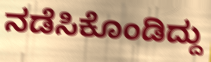
ನಡೆಸಿಕೊಂಡಿದ್ದು